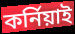
কর্নিয়াই